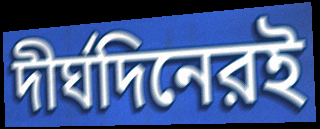
দীর্ঘদিনেরই